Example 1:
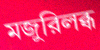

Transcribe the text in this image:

মজুরিলব্ধ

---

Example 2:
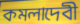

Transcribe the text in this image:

কমলাদেবী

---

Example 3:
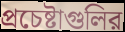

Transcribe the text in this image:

প্রচেষ্টাগুলির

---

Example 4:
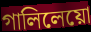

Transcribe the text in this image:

গালিলেয়ো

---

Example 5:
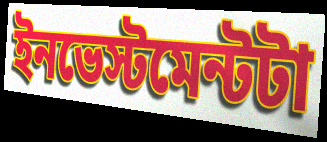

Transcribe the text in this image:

ইনভেস্টমেন্টটা